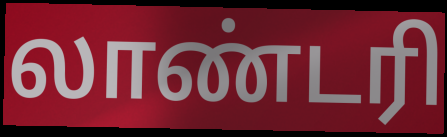
லாண்டரி